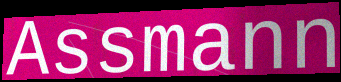
Assmann